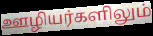
ஊழியர்களிலும்